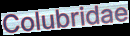
Colubridae